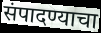
संपादण्याचा